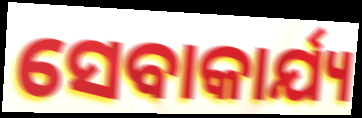
ସେବାକାର୍ଯ୍ୟ